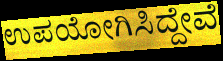
ಉಪಯೋಗಿಸಿದ್ದೇವೆ